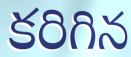
కరిగిన